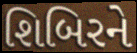
શિબિરને